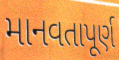
માનવતાપૂર્ણ